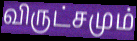
விருட்சமும்